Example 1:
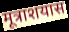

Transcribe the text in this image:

मूत्राशयास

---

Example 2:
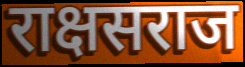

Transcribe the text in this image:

राक्षसराज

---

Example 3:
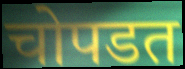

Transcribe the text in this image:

चोपडत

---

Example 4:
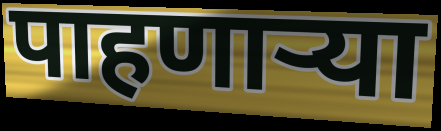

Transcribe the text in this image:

पाहणाऱ्या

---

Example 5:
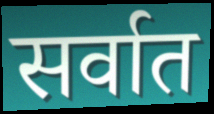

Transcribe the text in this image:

सर्वात